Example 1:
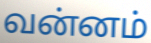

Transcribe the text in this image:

வன்னம்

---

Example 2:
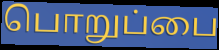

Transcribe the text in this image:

பொறுப்பை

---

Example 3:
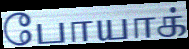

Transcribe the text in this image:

போயாக்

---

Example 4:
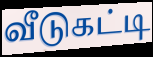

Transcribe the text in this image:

வீடுகட்டி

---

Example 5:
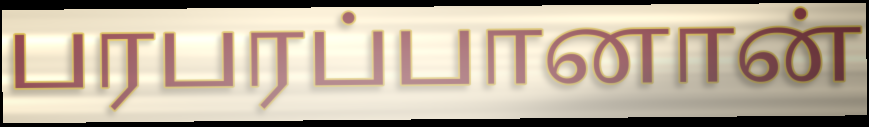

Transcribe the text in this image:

பரபரப்பானான்